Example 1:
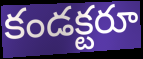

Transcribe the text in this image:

కండక్టరూ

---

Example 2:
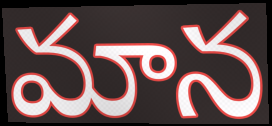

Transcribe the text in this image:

మాన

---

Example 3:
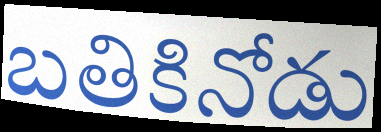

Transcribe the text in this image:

బతికినోడు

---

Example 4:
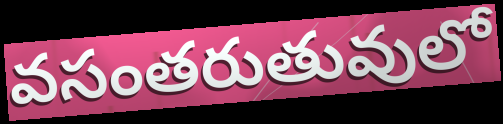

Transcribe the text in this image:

వసంతరుతువులో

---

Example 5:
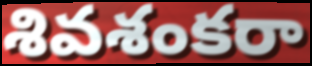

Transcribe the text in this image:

శివశంకరా